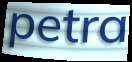
petra